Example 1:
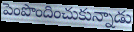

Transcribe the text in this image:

పెంపొందించుకున్నాడు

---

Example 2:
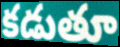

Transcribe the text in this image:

కడుతూ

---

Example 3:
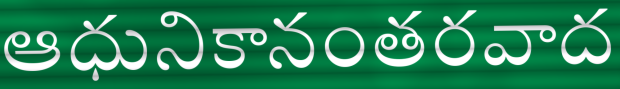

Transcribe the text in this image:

ఆధునికానంతరవాద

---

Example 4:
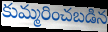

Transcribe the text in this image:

కుమ్మరించబడిన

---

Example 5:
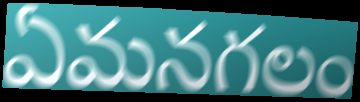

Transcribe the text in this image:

ఏమనగలం